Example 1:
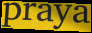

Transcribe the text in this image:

praya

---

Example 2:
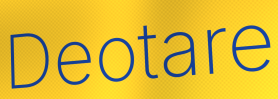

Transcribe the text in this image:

Deotare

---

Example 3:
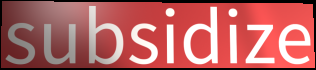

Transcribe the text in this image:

subsidize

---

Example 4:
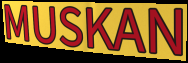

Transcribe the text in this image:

MUSKAN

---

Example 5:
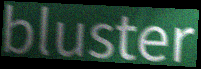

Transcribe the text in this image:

bluster